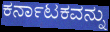
ಕರ್ನಾಟಕವನ್ನು